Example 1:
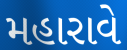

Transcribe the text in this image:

મહારાવે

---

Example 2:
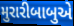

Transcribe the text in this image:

મુરારીબાબુએ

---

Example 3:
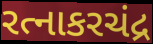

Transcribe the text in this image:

રત્નાકરચંદ્ર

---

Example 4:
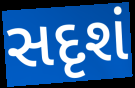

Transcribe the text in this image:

સદૃશં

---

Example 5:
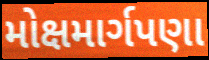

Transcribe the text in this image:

મોક્ષમાર્ગપણા